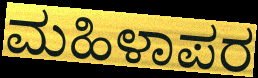
ಮಹಿಳಾಪರ